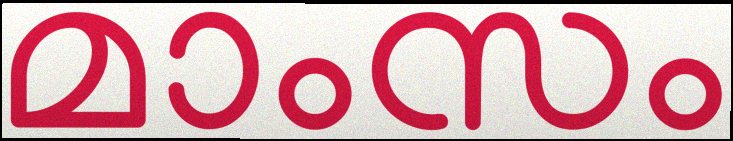
മാംസം